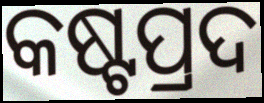
କଷ୍ଟପ୍ରଦ